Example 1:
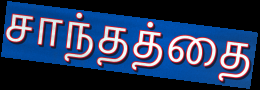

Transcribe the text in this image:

சாந்தத்தை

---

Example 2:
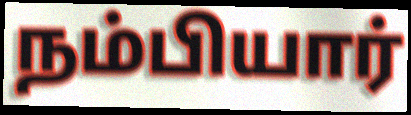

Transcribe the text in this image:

நம்பியார்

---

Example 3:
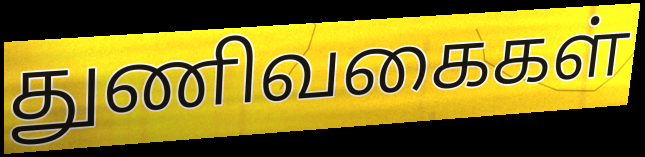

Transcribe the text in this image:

துணிவகைகள்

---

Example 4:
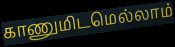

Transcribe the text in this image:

காணுமிடமெல்லாம்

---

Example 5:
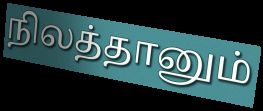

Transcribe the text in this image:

நிலத்தானும்